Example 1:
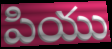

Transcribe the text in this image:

పియు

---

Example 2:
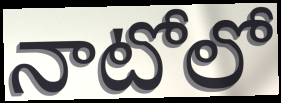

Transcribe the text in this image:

నాటోలో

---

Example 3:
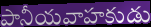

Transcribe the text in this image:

పానీయవాహకుడు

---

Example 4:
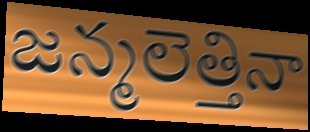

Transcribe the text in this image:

జన్మలెత్తినా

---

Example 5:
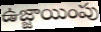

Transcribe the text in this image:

ఉజ్జాయింపు